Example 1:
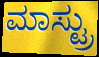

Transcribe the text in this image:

ಮಾಸ್ಟ್ರು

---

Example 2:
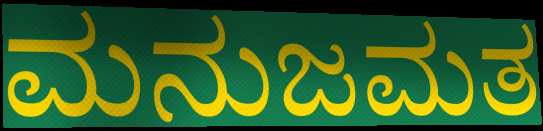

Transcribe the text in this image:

ಮನುಜಮತ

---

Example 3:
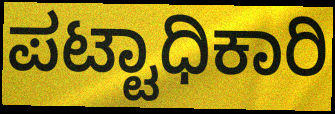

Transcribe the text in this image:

ಪಟ್ಟಾಧಿಕಾರಿ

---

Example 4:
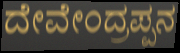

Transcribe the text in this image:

ದೇವೇಂದ್ರಪ್ಪನ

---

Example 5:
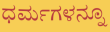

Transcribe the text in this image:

ಧರ್ಮಗಳನ್ನೂ